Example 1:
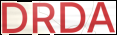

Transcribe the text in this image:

DRDA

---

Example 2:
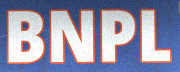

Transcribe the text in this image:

BNPL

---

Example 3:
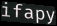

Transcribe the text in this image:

ifapy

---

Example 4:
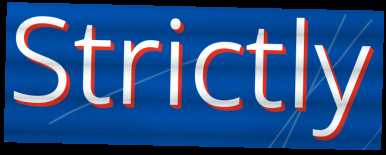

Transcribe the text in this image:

Strictly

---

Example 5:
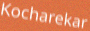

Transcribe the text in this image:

Kocharekar